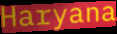
Haryana